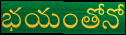
భయంతోనో